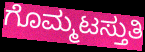
ಗೊಮ್ಮಟಸ್ತುತಿ